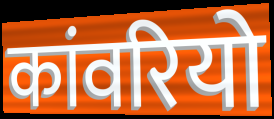
कांवरियो